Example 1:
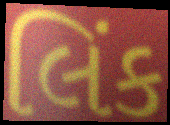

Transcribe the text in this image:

લિંક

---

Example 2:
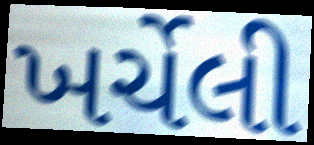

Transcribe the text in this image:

ખર્ચેલી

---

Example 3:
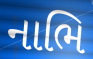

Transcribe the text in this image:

નાભિ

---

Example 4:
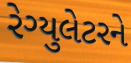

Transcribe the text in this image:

રેગ્યુલેટરને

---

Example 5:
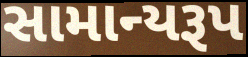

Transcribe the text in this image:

સામાન્યરૂપ